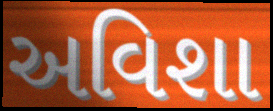
અવિશા